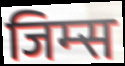
जिम्स